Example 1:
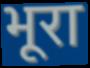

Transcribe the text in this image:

भूरा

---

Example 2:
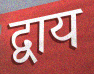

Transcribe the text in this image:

द्वाय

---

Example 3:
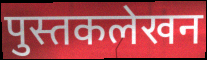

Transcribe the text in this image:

पुस्तकलेखन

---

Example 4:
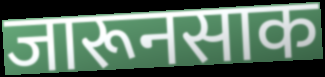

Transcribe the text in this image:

जारूनसाक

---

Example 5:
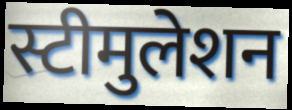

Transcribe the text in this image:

स्टीमुलेशन